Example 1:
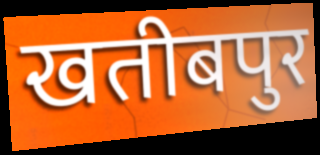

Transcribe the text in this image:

खतीबपुर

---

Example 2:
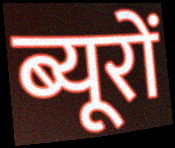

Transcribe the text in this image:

ब्यूरों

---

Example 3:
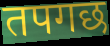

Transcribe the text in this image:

तपगछ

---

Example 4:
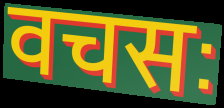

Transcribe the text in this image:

वचसः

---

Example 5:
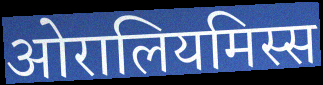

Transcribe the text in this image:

ओरालियमिस्स